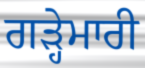
ਗੜ੍ਹੇਮਾਰੀ